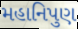
મહાનિપુણ